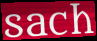
sach